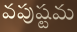
వపుష్టమ